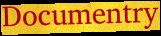
Documentry